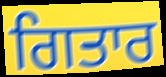
ਗਿਤਾਰ